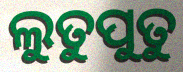
ଲୁତୁପୁତୁ